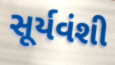
સૂર્યવંશી